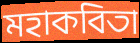
মহাকবিতা